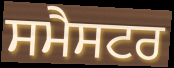
ਸਮੈਸਟਰ